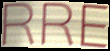
RRE